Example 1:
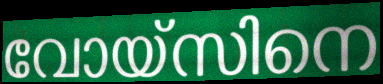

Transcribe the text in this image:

വോയ്സിനെ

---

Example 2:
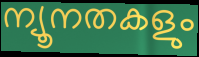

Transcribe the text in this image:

ന്യൂനതകളും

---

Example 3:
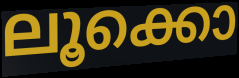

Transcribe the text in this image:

ലൂക്കൊ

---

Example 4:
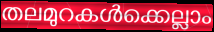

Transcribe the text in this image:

തലമുറകൾക്കെല്ലാം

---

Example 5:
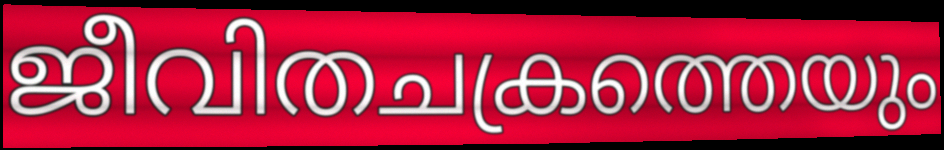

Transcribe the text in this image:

ജീവിതചക്രത്തെയും